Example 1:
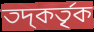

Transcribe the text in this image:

তদ্‌কর্তৃক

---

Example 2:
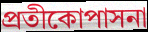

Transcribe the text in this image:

প্রতীকোপাসনা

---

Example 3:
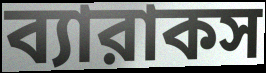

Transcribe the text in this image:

ব্যারাকস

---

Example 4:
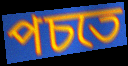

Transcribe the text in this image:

পচতে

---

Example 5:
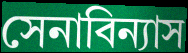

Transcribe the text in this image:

সেনাবিন্যাস